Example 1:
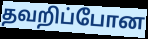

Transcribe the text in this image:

தவறிப்போன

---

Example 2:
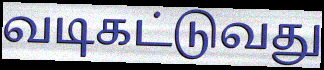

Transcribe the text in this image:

வடிகட்டுவது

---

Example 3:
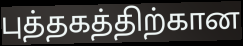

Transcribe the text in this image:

புத்தகத்திற்கான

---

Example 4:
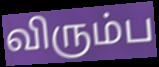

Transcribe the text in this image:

விரும்ப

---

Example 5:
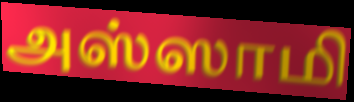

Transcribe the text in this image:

அஸ்ஸாமி